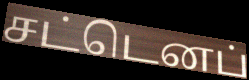
சட்டெனப்